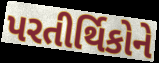
પરતીર્થિકોને